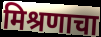
मिश्रणाचा